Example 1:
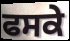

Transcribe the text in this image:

ਫਸਕੇ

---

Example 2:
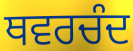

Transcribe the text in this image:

ਥਵਰਚੰਦ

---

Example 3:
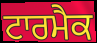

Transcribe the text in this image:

ਟਾਰਮੈਕ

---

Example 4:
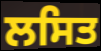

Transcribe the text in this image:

ਲਸਿਤ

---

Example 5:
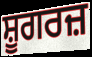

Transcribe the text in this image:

ਸ਼ੂਗਰਜ਼